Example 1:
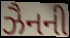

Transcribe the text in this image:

ઝૈનની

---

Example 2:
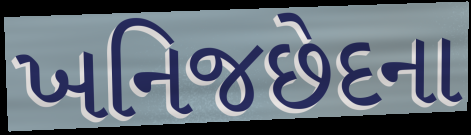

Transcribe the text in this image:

ખનિજછેદના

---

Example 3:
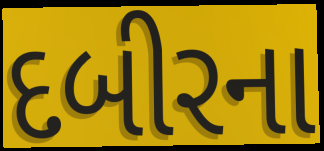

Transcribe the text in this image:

દબીરના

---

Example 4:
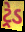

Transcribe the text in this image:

ટ્રેડ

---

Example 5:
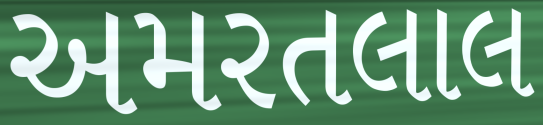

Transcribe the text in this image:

અમરતલાલ